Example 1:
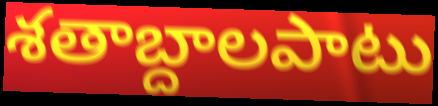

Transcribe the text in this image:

శతాబ్దాలపాటు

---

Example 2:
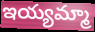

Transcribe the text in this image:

ఇయ్యమ్మా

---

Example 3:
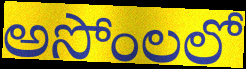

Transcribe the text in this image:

అసోంలలో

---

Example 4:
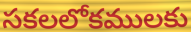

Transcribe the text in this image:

సకలలోకములకు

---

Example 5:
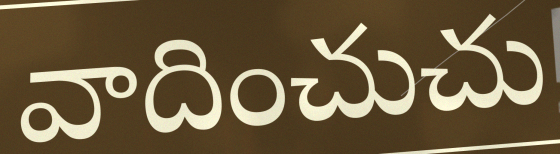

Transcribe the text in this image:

వాదించుచు